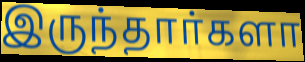
இருந்தார்களா